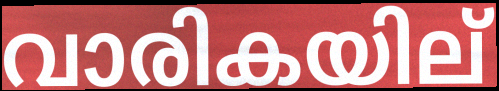
വാരികയില്